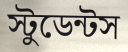
স্টুডেন্টস